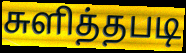
சுளித்தபடி